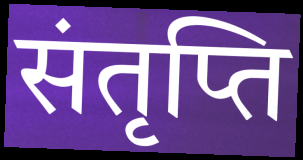
संतृप्ति